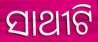
ସାଥୀଟି